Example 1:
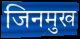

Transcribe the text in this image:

जिनमुख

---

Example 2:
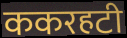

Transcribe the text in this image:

ककरहटी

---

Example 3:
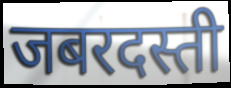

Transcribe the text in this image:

जबरदस्ती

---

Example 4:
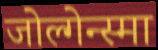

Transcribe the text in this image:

जोल्गेन्स्मा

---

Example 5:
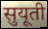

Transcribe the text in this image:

सुयूती